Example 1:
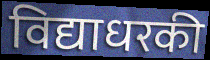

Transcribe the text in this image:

विद्याधरकी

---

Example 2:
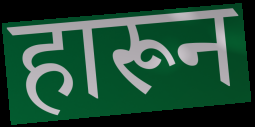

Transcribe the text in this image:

हारून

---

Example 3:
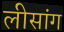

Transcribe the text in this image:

लीसांग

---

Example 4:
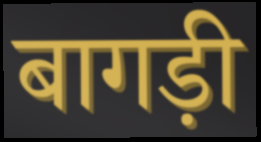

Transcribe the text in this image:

बागड़ी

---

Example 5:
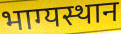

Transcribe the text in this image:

भाग्यस्थान